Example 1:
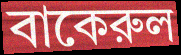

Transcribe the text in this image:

বাকেরুল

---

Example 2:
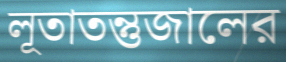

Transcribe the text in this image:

লূতাতন্তুজালের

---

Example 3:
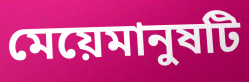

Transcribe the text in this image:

মেয়েমানুষটি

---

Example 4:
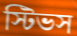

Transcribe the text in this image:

স্টিভস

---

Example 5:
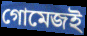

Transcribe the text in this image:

গোমেজই